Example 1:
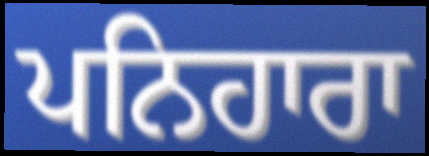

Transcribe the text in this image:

ਪਨਿਹਾਰਾ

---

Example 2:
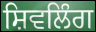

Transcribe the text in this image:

ਸ਼ਿਵਲਿੰਗ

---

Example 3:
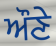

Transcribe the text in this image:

ਔਣੇ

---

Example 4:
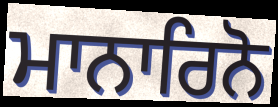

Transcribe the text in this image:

ਮਾਨਾਰਿਨੋ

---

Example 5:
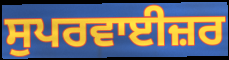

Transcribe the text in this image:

ਸੁਪਰਵਾਈਜ਼ਰ